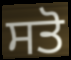
ਸਤੋ